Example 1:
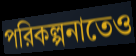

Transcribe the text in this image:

পরিকল্পনাতেও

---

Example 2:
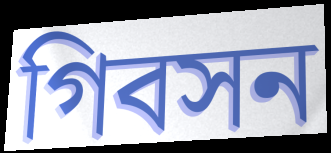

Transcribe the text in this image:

গিবসন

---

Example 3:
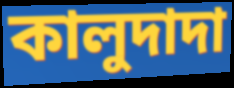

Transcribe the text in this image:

কালুদাদা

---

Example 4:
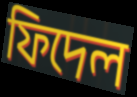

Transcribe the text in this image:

ফিদেল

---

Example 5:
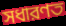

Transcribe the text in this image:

সধারণত